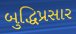
બુદ્ધિપ્રસાર